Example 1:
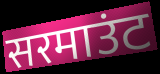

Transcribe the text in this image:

सरमाउंट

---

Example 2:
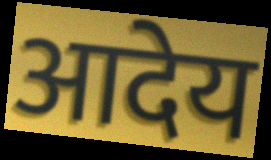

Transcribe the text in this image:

आदेय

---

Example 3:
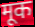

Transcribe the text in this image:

मूक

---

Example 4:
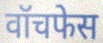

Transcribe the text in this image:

वॉचफेस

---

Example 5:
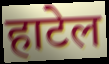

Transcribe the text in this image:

हाटेल